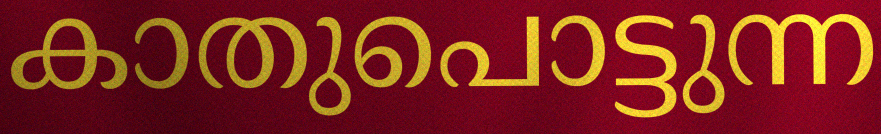
കാതുപൊട്ടുന്ന